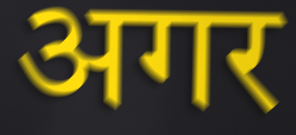
अगर